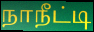
நாநீட்டி